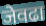
जेवढा